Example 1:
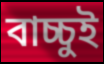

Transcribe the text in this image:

বাচ্চুই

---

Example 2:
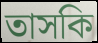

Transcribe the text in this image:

তাসকি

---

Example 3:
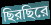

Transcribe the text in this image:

ছিরছিরে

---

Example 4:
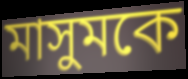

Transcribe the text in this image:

মাসুমকে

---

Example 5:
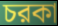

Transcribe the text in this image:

চরকা